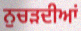
ਨੁਚੜਦੀਆਂ